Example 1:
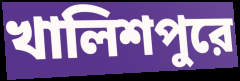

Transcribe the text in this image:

খালিশপুরে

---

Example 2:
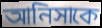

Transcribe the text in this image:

আনিসাকে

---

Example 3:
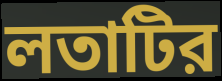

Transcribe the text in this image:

লতাটির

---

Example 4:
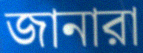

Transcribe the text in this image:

জানারা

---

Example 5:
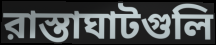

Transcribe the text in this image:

রাস্তাঘাটগুলি